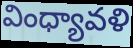
వింధ్యావళి